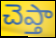
చెప్తా